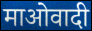
माओवादी